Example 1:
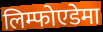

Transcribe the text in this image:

लिम्फोएडेमा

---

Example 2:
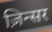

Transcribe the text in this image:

ज़िन्सर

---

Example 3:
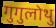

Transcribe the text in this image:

गुगुलोथु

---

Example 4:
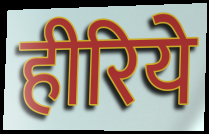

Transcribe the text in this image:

हीरिये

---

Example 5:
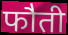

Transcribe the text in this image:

फौती